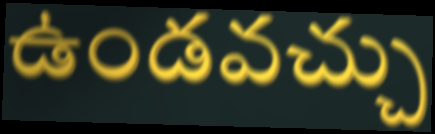
ఉండవచ్చు